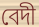
বেদী